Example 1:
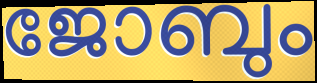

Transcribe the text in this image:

ജോബും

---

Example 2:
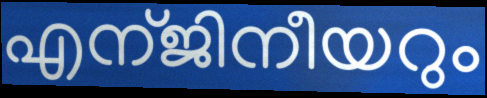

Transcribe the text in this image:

എന്ജിനീയറും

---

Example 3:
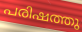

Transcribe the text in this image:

പരിഷത്തു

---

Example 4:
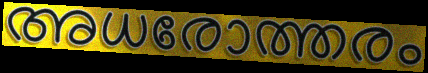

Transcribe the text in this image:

അധരോത്തരം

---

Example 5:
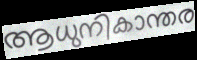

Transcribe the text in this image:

ആധുനികാന്തര